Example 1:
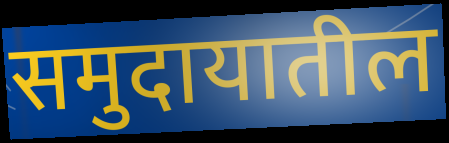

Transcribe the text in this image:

समुदायातील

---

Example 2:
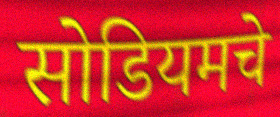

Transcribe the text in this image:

सोडियमचे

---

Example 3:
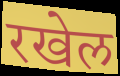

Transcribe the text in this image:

रखेल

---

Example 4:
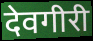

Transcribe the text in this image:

देवगीरी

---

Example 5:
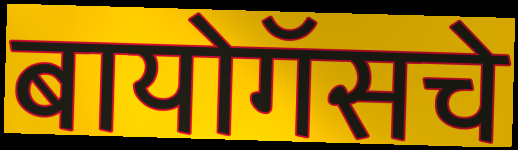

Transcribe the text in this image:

बायोगॅसचे